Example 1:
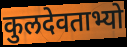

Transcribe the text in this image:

कुलदेवताभ्यो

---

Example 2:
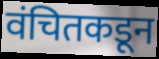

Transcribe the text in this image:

वंचितकडून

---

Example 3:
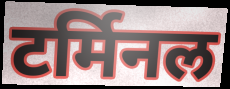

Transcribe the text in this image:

टर्मिनल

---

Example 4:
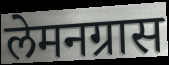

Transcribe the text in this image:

लेमनग्रास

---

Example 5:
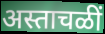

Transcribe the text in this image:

अस्ताचळीं